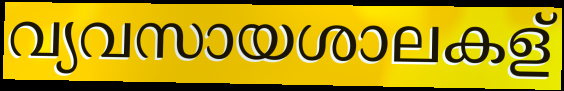
വ്യവസായശാലകള്